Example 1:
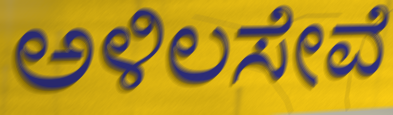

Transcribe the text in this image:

ಅಳಿಲಸೇವೆ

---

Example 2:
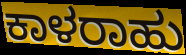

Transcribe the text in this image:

ಕಾಳರಾಹು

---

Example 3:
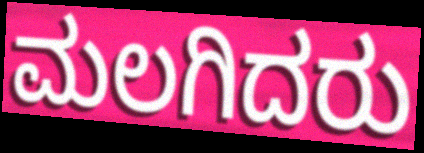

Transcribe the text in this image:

ಮಲಗಿದರು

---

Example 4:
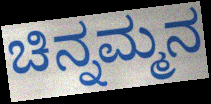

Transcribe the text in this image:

ಚಿನ್ನಮ್ಮನ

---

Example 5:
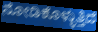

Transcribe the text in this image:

ನೋಡಿಕೊಳ್ಳುತ್ತಿದೆ